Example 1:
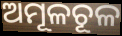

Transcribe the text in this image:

ଅମୂଳଚୂଳ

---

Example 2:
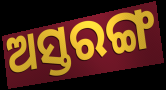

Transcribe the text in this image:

ଅସ୍ତରଙ୍ଗ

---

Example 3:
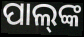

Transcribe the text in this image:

ପାଲ୍‌ଙ୍କ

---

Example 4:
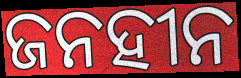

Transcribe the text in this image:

ଜନହୀନ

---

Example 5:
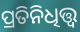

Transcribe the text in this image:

ପ୍ରତିନିଧିତ୍ତ୍ୱ